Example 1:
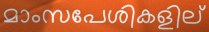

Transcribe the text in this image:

മാംസപേശികളില്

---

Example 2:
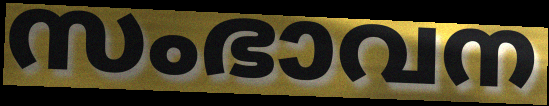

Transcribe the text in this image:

സംഭാവന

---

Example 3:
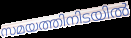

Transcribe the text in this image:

സമയത്തിനിടയിൽ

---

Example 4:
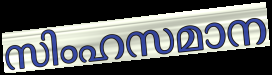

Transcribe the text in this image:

സിംഹസമാന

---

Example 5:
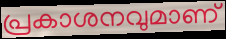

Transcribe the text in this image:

പ്രകാശനവുമാണ്